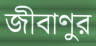
জীবাণুর